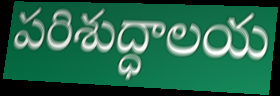
పరిశుద్ధాలయ